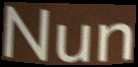
Nun